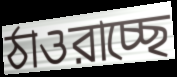
ঠাওরাচ্ছে